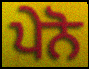
ਪੇਨੋ